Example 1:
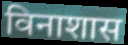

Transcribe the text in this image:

विनाशास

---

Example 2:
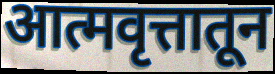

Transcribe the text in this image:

आत्मवृत्तातून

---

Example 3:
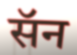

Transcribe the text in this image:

सॅन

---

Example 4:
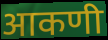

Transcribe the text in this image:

आकणी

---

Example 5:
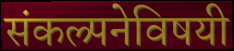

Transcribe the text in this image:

संकल्पनेविषयी